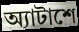
অ্যাটাশে